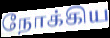
நோக்கிய